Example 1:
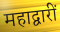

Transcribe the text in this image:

महाद्वारीं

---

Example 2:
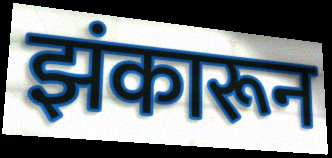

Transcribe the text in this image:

झंकारून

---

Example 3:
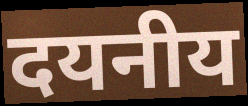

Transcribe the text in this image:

दयनीय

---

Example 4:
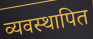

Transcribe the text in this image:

व्यवस्थापित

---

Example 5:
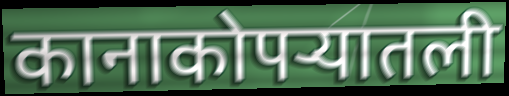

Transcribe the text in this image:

कानाकोपऱ्यातली